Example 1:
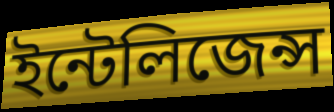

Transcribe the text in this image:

ইন্টেলিজেন্স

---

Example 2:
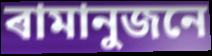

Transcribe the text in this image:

ৰামানুজনে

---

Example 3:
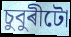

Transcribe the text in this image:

চুবুৰীটো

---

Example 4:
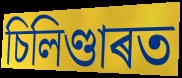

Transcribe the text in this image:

চিলিণ্ডাৰত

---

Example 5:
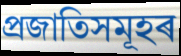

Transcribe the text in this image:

প্ৰজাতিসমূহৰ